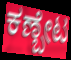
ಕಣ್ಬೇಟ